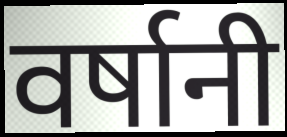
वर्षानी